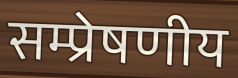
सम्प्रेषणीय